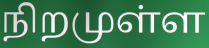
நிறமுள்ள